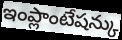
ఇంప్లాంటేషన్కు